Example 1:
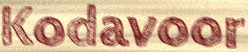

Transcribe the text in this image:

Kodavoor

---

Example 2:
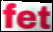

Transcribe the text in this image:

fet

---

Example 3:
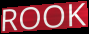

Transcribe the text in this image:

ROOK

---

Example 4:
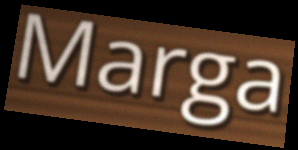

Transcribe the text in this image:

Marga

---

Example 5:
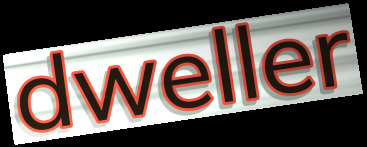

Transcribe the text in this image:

dweller